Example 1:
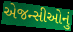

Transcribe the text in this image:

એજન્સીઓનું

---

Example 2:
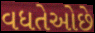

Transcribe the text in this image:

વધતેઓછે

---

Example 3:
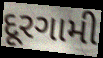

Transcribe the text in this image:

દૂરગામી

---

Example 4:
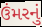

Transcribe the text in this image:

ઉંમરનું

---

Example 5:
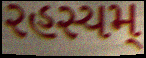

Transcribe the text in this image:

રહસ્યમ્